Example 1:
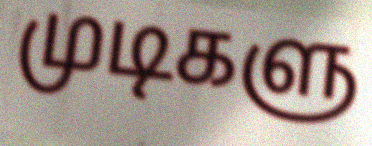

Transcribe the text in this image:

முடிகளு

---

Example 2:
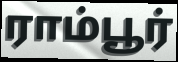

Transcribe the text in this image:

ராம்பூர்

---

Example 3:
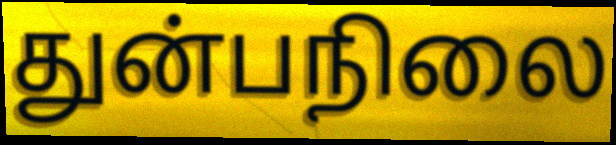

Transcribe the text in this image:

துன்பநிலை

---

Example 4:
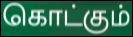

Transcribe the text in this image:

கொட்கும்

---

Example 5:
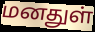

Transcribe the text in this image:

மனதுள்